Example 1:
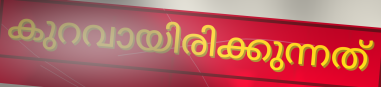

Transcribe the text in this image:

കുറവായിരിക്കുന്നത്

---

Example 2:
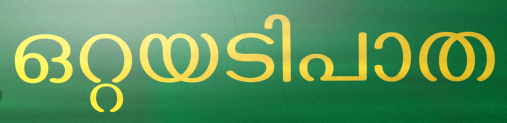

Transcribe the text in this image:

ഒറ്റയടിപാത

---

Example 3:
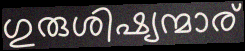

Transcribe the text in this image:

ഗുരുശിഷ്യന്മാര്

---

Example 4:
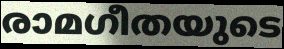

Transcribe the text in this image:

രാമഗീതയുടെ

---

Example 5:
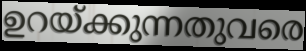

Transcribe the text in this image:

ഉറയ്ക്കുന്നതുവരെ